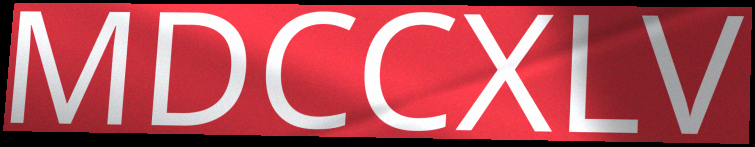
MDCCXLV